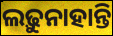
ଲଢ଼ୁନାହାନ୍ତି